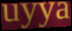
uyya